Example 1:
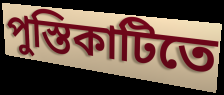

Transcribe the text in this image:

পুস্তিকাটিতে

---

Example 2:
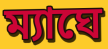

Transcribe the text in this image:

ম্যাঘে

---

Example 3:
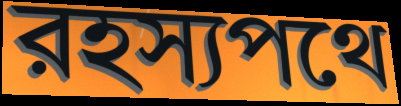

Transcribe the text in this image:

রহস্যপথে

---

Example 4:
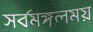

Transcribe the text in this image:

সর্বমঙ্গলময়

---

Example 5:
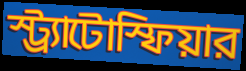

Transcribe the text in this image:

স্ট্র্যাটোস্ফিয়ার